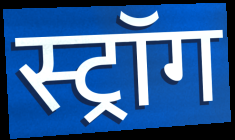
स्ट्रॉग